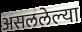
असललेल्या